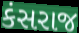
કંસરાજ